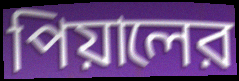
পিয়ালের